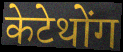
केटेथोंग